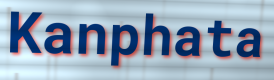
Kanphata